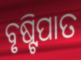
ବୃଷ୍ଟିପାତ